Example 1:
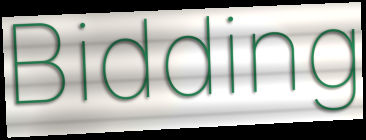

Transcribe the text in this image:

Bidding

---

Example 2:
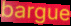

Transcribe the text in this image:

bargue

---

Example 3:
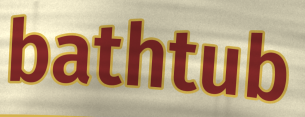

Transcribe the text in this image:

bathtub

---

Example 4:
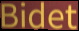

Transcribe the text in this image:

Bidet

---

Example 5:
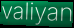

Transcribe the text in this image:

valiyan